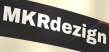
MKRdezign